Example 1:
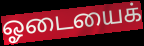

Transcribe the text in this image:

ஓடையைக்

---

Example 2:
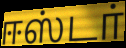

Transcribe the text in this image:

ஈஸ்டர்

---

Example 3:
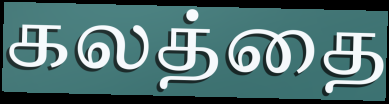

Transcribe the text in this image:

கலத்தை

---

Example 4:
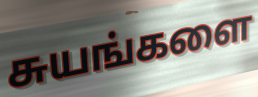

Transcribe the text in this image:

சுயங்களை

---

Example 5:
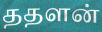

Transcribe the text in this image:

ததளன்